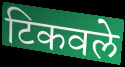
टिकवले